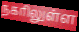
நகரிலுள்ள